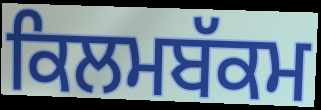
ਕਿਲਮਬੱਕਮ